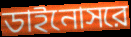
ডাইনোসরে